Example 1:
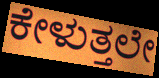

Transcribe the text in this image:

ಕೇಳುತ್ತಲೇ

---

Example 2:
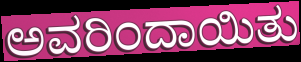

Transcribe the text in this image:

ಅವರಿಂದಾಯಿತು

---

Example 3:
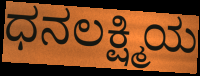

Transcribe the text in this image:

ಧನಲಕ್ಷ್ಮಿಯ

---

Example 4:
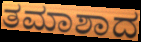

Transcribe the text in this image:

ತಮಾಶಾದ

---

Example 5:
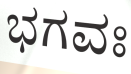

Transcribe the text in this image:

ಭಗವಃ